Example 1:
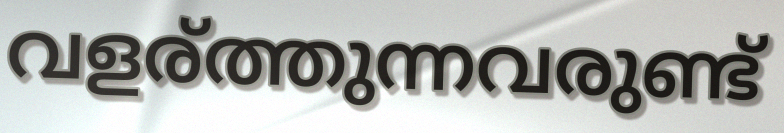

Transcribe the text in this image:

വളര്ത്തുന്നവരുണ്ട്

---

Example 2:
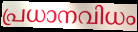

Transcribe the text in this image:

പ്രധാനവിധം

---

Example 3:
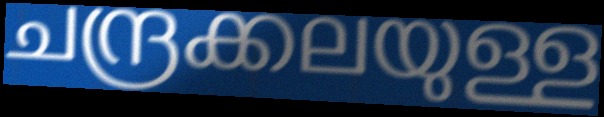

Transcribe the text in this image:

ചന്ദ്രക്കലയുള്ള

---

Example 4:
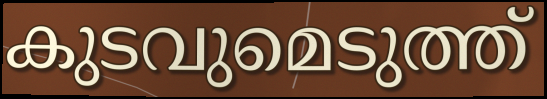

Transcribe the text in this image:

കുടവുമെടുത്ത്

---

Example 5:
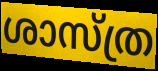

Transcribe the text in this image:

ശാസ്ത്ര